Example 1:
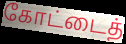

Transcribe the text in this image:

கோட்டைத்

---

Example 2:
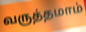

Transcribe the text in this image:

வருத்தமாம்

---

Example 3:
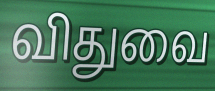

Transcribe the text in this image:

விதுவை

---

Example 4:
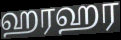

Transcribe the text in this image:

ஹரஹர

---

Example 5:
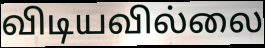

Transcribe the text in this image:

விடியவில்லை